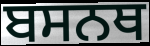
ਬਸਨਥ